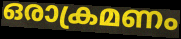
ഒരാക്രമണം